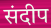
संदीप